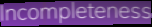
Incompleteness